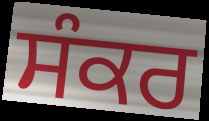
ਸੰਕਰ